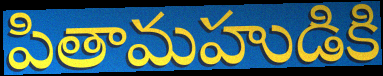
పితామహుడికి